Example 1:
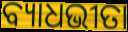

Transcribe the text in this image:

ବ୍ୟାଧଭୀତା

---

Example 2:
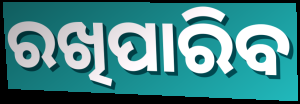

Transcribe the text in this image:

ରଖିପାରିବ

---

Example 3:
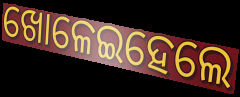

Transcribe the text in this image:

ଖୋଳେଇହେଲେ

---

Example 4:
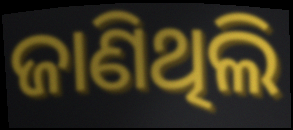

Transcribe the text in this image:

ଜାଣିଥିଲି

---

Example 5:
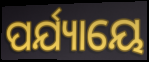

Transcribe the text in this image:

ପର୍ଯ୍ୟାୟେ